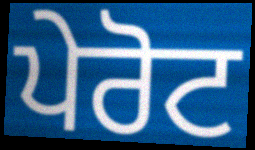
ਪੇਰੋਟ